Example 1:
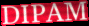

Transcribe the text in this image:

DIPAM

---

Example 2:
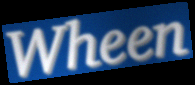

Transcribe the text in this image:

Wheen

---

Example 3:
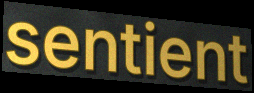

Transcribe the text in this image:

sentient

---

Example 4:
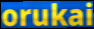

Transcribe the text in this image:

orukai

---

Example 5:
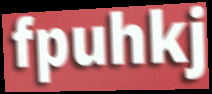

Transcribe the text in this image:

fpuhkj